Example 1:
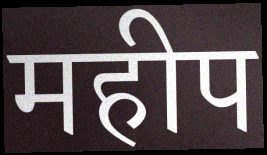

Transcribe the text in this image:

महीप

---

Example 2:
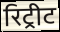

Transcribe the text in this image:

रिट्रीट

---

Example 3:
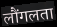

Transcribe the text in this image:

लौंगलता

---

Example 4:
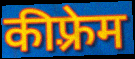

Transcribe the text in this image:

कीफ़्रेम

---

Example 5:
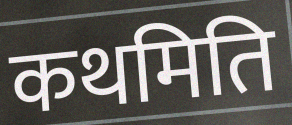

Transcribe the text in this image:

कथमिति